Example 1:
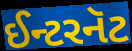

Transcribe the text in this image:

ઈન્ટરનૅટ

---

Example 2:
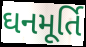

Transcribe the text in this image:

ઘનમૂર્તિ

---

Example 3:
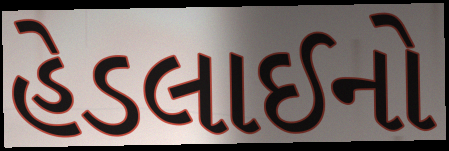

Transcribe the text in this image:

હેડલાઈનો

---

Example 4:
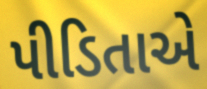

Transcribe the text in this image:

પીડિતાએ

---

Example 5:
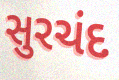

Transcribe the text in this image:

સુરચંદ